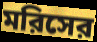
মরিসের